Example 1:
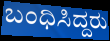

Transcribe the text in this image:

ಬಂಧಿಸಿದ್ದರು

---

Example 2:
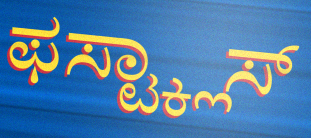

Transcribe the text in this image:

ಫಸ್ಟ್ಕ್ಲಾಸ್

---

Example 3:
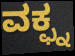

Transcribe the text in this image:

ವಕ್ಫ್ನ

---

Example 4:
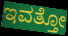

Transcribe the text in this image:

ಇವತ್ತೋ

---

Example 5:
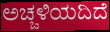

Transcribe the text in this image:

ಅಚ್ಚಳಿಯದಿದೆ